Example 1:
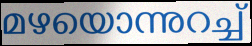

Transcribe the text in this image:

മഴയൊന്നുറച്ച്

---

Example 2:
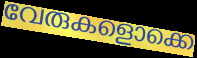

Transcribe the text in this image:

വേരുകളൊക്കെ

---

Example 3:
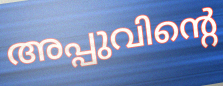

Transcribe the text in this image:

അപ്പുവിന്റെ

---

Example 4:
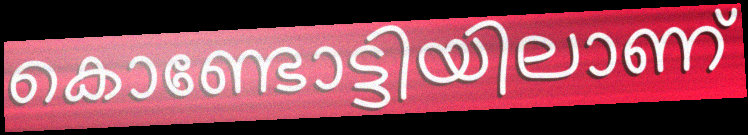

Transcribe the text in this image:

കൊണ്ടോട്ടിയിലാണ്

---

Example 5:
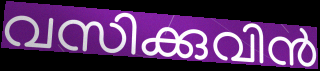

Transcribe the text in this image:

വസിക്കുവിൻ